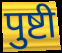
पुष्टी